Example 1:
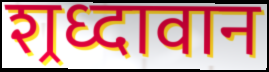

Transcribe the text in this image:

श्रध्दावान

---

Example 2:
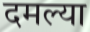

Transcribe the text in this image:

दमल्या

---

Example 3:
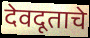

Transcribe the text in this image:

देवदूताचे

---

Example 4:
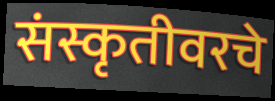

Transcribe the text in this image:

संस्कृतीवरचे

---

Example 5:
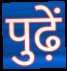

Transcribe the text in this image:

पुढ़ें